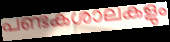
പണ്ടകശാലകളും